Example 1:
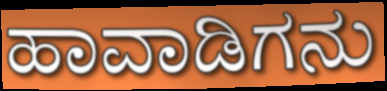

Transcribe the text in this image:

ಹಾವಾಡಿಗನು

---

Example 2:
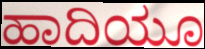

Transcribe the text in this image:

ಹಾದಿಯೂ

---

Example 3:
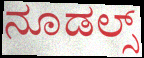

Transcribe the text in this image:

ನೂಡಲ್ಸ್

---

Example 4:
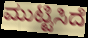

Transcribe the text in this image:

ಮುಟ್ಟಿಸಿದೆ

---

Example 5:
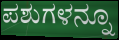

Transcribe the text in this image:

ಪಶುಗಳನ್ನೂ